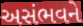
અસંભવને